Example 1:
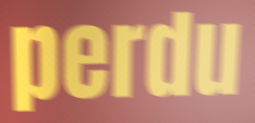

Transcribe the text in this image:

perdu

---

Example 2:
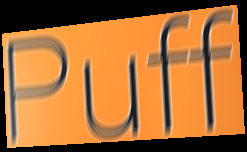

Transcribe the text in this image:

Puff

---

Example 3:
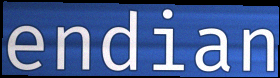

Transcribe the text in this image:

endian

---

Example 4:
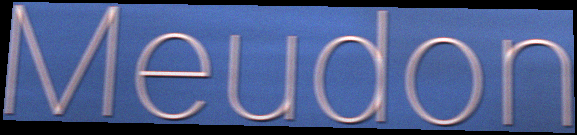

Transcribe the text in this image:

Meudon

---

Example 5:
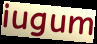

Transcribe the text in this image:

iugum